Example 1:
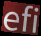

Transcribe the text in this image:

efi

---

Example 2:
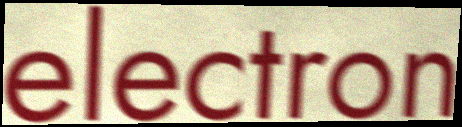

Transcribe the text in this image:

electron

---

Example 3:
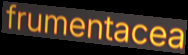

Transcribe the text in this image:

frumentacea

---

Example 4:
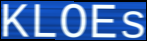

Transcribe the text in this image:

KLOEs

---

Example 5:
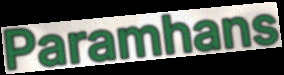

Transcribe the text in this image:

Paramhans